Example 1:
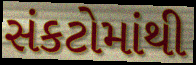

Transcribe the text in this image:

સંકટોમાંથી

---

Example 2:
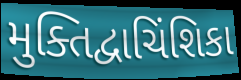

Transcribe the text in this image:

મુક્તિદ્વાચિંશિકા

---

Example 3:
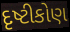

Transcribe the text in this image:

દૃષ્ટીકોણ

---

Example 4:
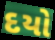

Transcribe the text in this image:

દયો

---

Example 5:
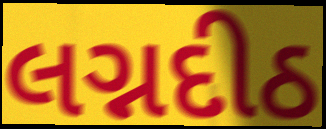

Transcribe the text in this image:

લગ્નદીઠ